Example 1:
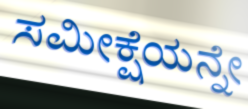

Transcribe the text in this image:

ಸಮೀಕ್ಷೆಯನ್ನೇ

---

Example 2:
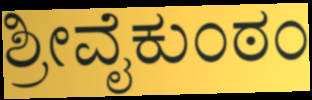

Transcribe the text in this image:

ಶ್ರೀವೈಕುಂಠಂ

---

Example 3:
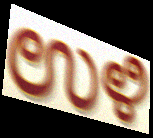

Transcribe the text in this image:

ಉಳಿ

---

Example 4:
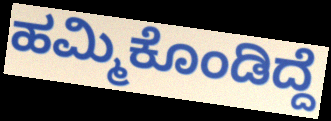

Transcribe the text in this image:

ಹಮ್ಮಿಕೊಂಡಿದ್ದೆ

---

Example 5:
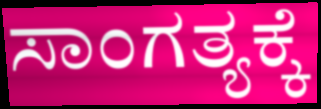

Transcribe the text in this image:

ಸಾಂಗತ್ಯಕ್ಕೆ